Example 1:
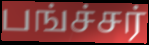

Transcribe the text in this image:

பங்ச்சர்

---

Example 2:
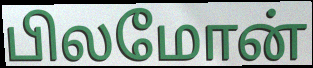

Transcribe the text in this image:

பிலமோன்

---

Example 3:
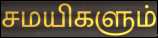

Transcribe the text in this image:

சமயிகளும்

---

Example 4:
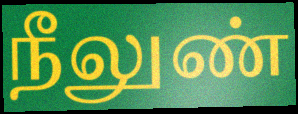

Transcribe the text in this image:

நீலுண்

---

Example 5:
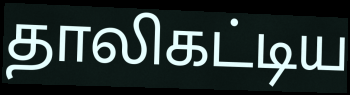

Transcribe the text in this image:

தாலிகட்டிய